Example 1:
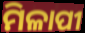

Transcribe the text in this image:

ମିଳାପୀ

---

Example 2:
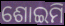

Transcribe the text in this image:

ଶୋଇମି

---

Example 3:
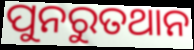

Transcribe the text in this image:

ପୁନରୁତଥାନ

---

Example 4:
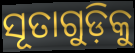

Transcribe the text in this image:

ସୂତାଗୁଡ଼ିକୁ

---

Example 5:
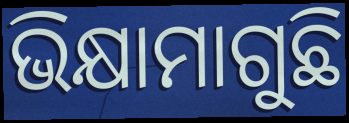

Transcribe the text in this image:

ଭିକ୍ଷାମାଗୁଛି